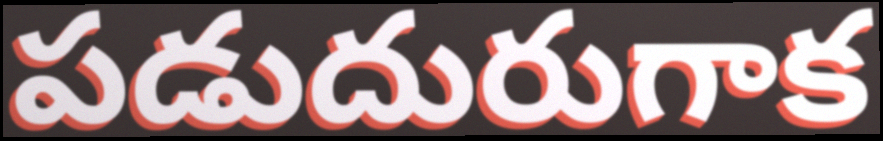
పడుదురుగాక